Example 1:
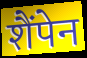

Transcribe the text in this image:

शैंपेन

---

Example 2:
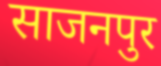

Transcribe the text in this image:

साजनपुर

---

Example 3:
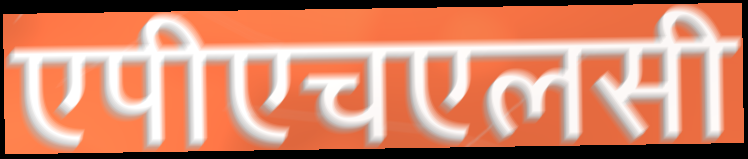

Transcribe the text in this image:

एपीएचएलसी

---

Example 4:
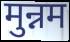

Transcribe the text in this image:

मुन्नम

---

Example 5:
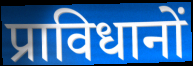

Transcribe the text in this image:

प्राविधानों